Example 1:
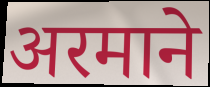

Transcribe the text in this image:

अरमाने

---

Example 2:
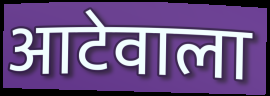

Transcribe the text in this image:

आटेवाला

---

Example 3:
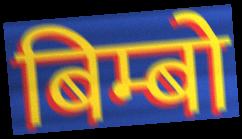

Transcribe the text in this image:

बिम्बो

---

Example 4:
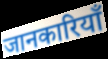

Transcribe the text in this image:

जानकारियाँ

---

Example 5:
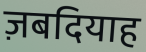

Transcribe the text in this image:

ज़बदियाह